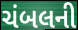
ચંબલની